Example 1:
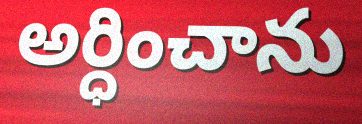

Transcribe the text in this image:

అర్ధించాను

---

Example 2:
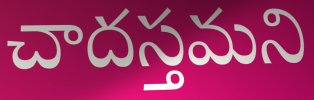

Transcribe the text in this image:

చాదస్తమని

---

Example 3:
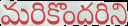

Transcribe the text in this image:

మరికొందరిని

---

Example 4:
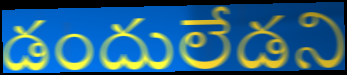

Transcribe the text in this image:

డందులేడని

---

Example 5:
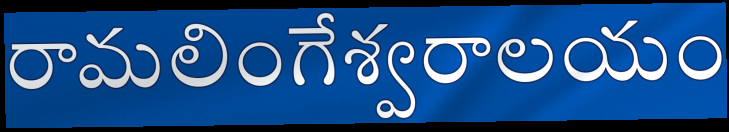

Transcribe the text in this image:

రామలింగేశ్వరాలయం